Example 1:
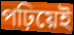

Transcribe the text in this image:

পঢ়িয়েই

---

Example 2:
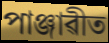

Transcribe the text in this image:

পাঞ্জাৱীত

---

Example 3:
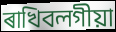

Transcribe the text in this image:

ৰাখিবলগীয়া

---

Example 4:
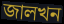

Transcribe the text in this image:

জালখন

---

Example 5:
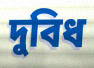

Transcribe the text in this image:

দুবিধ